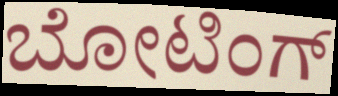
ಬೋಟಿಂಗ್